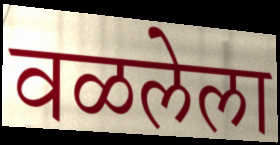
वळलेला